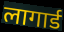
लागार्ड